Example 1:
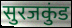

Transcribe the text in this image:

सुरजकुंड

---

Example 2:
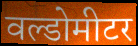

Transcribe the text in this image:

वल्डोमीटर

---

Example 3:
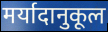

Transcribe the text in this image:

मर्यादानुकूल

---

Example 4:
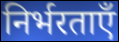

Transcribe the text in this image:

निर्भरताएँ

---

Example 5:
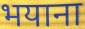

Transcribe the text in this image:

भयाना